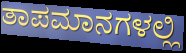
ತಾಪಮಾನಗಳಲ್ಲಿ